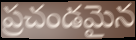
ప్రచండమైన